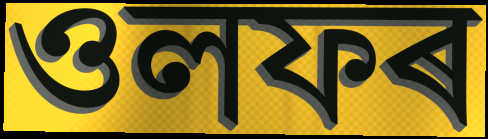
ওলফৰ